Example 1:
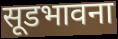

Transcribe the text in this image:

सूडभावना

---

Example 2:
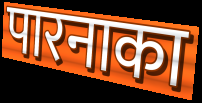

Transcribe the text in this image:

पारनाका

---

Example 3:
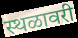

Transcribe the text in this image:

स्थळावरी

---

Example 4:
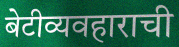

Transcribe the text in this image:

बेटीव्यवहाराची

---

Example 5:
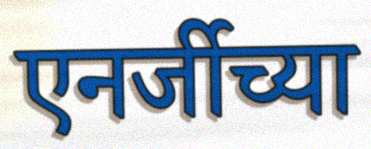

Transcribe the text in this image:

एनर्जीच्या